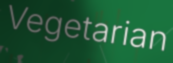
Vegetarian